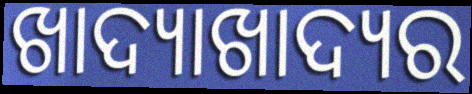
ଖାଦ୍ୟାଖାଦ୍ୟର